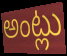
అంట్లు